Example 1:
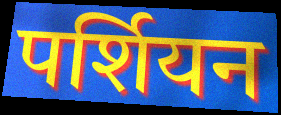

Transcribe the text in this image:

पर्शियन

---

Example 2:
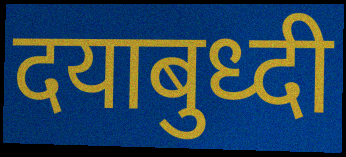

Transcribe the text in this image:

दयाबुध्दी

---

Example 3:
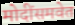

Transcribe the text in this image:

मोदींसमवेत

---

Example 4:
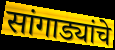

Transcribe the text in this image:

सांगाड्यांचे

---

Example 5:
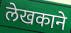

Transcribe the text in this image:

लेखकाने